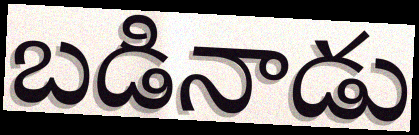
బడినాడు